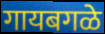
गायबगळे